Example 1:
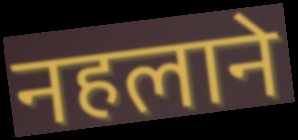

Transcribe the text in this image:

नहलाने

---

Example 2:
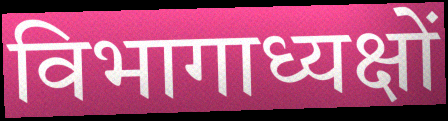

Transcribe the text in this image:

विभागाध्‍यक्षों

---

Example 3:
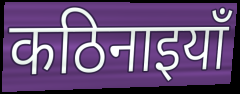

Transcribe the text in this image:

कठिनाइयाँ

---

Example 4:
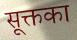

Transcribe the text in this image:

सूक्तका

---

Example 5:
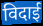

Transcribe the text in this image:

विदाई